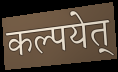
कल्पयेत्